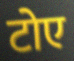
टोए